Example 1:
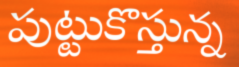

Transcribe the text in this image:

పుట్టుకొస్తున్న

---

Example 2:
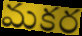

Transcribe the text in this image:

మకర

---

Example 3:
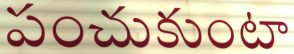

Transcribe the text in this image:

పంచుకుంటా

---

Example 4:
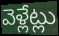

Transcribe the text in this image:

వెళ్లేట్లు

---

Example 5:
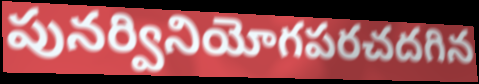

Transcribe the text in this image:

పునర్వినియోగపరచదగిన